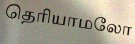
தெரியாமலோ